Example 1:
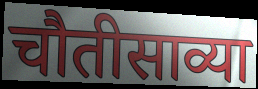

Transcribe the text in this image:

चौतीसाव्या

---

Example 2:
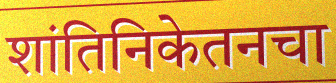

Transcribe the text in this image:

शांतिनिकेतनचा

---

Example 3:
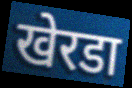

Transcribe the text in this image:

खेरडा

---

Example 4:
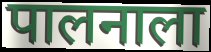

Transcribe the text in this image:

पालनाला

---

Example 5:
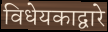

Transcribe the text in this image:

विधेयकाद्वारे